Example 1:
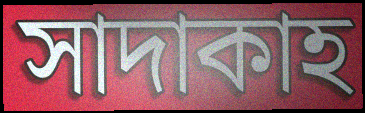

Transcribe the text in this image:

সাদাকাহ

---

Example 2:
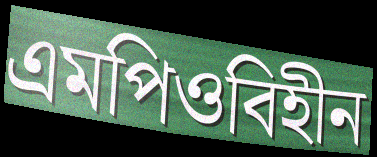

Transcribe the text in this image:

এমপিওবিহীন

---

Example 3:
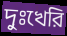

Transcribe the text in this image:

দুঃখেরি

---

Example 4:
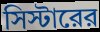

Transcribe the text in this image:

সিস্টারের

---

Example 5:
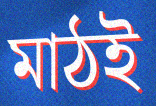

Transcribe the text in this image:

মাঠই